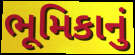
ભૂમિકાનું